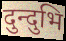
दुन्दुभि